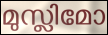
മുസ്ലിമോ